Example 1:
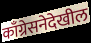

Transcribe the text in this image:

काँग्रेसनेदेखील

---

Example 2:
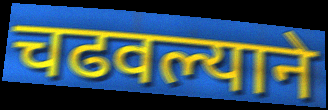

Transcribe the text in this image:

चढवल्याने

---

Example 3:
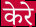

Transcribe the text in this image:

केरे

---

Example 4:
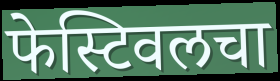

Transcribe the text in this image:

फेस्टिवलचा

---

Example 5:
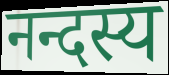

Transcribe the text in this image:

नन्दस्य